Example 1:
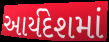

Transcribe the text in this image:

આર્યદેશમાં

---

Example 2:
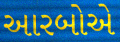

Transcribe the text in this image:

આરબોએ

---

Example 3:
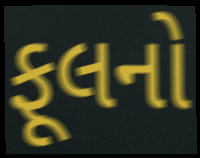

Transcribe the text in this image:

ફૂલનો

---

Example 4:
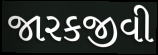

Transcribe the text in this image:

જારકજીવી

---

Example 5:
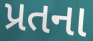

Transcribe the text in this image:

પ્રતના